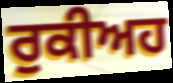
ਰੁਕੀਅਹ